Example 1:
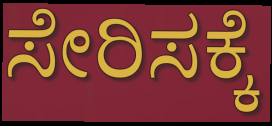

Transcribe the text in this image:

ಸೇರಿಸಕ್ಕೆ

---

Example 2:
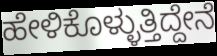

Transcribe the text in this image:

ಹೇಳಿಕೊಳ್ಳುತ್ತಿದ್ದೇನೆ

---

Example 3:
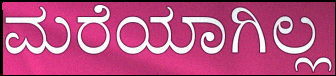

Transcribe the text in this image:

ಮರೆಯಾಗಿಲ್ಲ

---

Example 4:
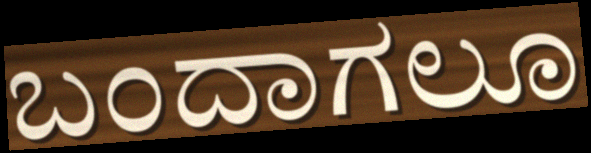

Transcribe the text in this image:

ಬಂದಾಗಲೂ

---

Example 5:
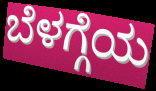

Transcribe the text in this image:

ಬೆಳಗ್ಗೆಯ